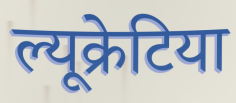
ल्यूक्रेटिया